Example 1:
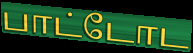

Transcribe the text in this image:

பாட்டோட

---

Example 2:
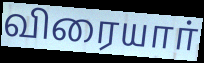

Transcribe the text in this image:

விரையார்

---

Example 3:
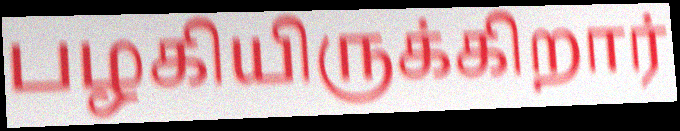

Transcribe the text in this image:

பழகியிருக்கிறார்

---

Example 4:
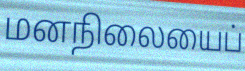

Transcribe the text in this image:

மனநிலையைப்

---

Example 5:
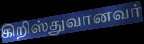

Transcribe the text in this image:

கிறிஸ்துவானவர்